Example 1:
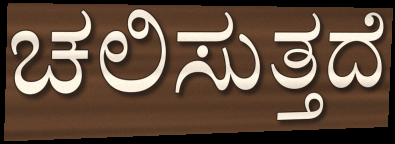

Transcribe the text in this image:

ಚಲಿಸುತ್ತದೆ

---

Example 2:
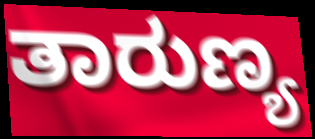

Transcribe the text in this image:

ತಾರುಣ್ಯ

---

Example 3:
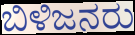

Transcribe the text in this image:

ಬಿಳಿಜನರು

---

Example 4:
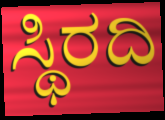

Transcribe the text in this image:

ಸ್ಥಿರದಿ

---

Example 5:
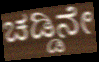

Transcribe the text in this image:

ಚಡ್ಡಿನೇ